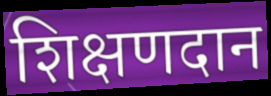
शिक्षणदान